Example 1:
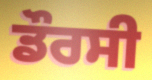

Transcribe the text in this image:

ਡੌਰਸੀ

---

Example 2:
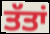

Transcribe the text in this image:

ਤੱਤਾਂ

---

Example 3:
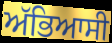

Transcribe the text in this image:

ਅੱਭਿਆਸੀ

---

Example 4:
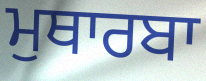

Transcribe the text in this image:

ਮੁਥਾਰਬਾ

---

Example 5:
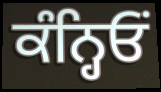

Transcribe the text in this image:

ਕੰਨ੍ਹਿਓਂ